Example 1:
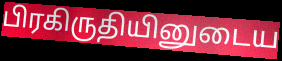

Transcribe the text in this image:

பிரகிருதியினுடைய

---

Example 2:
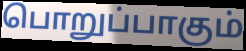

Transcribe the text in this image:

பொறுப்பாகும்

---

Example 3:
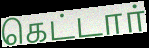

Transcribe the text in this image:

கெட்டார்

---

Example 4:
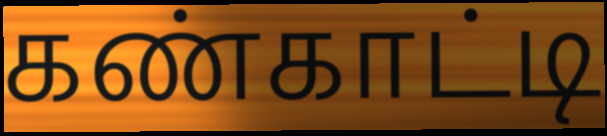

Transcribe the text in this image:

கண்காட்டி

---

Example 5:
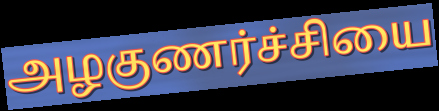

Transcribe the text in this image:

அழகுணர்ச்சியை